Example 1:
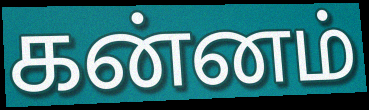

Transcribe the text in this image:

கன்னம்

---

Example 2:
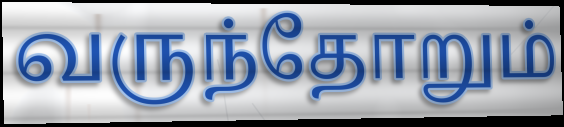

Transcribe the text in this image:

வருந்தோறும்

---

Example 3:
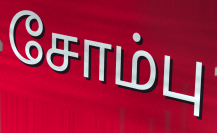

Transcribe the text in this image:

சோம்பு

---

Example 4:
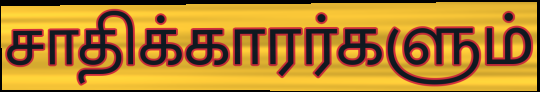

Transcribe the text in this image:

சாதிக்காரர்களும்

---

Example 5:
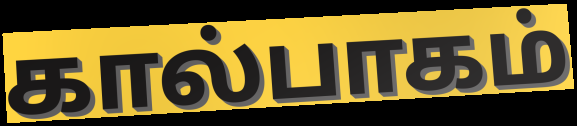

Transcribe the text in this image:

கால்பாகம்